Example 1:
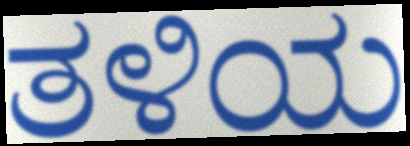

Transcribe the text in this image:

ತಳಿಯ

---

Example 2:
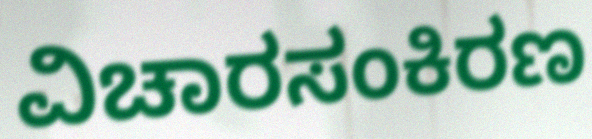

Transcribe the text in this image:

ವಿಚಾರಸಂಕಿರಣ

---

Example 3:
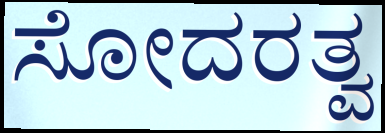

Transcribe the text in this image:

ಸೋದರತ್ವ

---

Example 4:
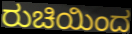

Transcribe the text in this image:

ರುಚಿಯಿಂದ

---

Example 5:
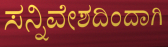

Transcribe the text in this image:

ಸನ್ನಿವೇಶದಿಂದಾಗಿ